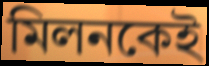
মিলনকেই